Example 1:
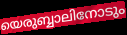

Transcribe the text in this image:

യെരുബ്ബാലിനോടും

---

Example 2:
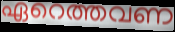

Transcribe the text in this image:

ഏറെത്തവണ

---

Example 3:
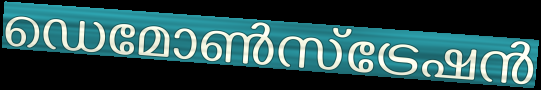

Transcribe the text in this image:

ഡെമോൺസ്ട്രേഷൻ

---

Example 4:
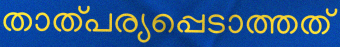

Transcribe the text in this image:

താത്പര്യപ്പെടാത്തത്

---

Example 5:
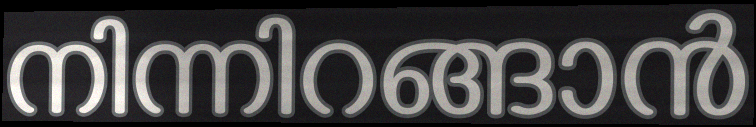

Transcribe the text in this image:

നിന്നിറങ്ങാൻ